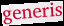
generis